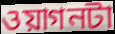
ওয়াগনটা